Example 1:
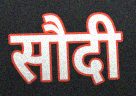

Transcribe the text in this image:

सौदी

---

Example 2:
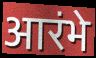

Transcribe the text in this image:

आरंभे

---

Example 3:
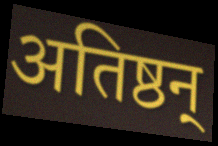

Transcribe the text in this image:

अतिष्ठन्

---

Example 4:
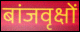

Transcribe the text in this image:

बांजवृक्षों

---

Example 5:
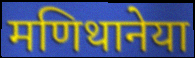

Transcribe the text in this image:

मणिथानेया